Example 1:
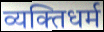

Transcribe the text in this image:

व्यक्तिधर्म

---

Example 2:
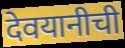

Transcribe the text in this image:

देवयानीची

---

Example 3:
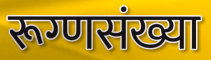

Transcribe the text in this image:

रूग्णसंख्या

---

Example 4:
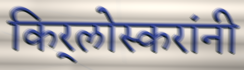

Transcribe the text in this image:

किर्लोस्करांनी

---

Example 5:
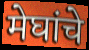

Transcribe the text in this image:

मेघांचे